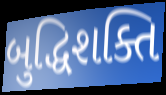
બુદ્ધિશક્તિ